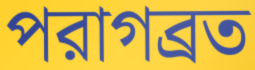
পরাগব্রত